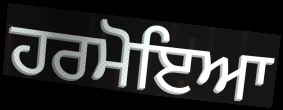
ਹਰਮੋਇਆ